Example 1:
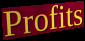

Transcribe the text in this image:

Profits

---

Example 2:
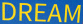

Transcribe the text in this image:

DREAM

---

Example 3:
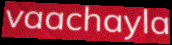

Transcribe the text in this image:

vaachayla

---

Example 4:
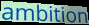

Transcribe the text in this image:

ambition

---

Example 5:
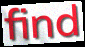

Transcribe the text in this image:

find